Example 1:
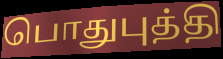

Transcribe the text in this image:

பொதுபுத்தி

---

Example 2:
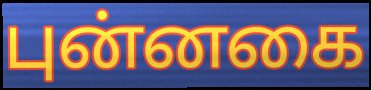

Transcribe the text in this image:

புன்னகை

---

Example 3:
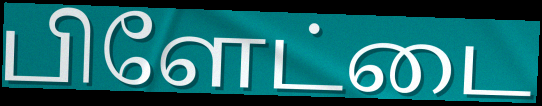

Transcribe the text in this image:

பிளேட்டை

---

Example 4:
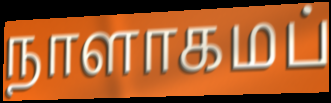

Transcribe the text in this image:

நாளாகமப்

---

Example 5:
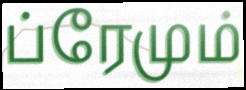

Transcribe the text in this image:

ப்ரேமும்